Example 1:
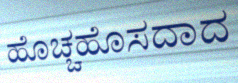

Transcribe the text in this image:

ಹೊಚ್ಚಹೊಸದಾದ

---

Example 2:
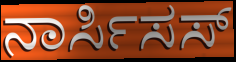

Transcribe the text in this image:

ನಾರ್ಸಿಸಸ್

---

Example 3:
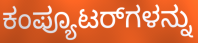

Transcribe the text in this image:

ಕಂಪ್ಯೂಟರ್‌ಗಳನ್ನು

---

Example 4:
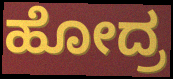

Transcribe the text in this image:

ಹೋದ್ರ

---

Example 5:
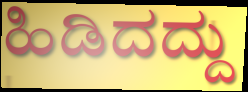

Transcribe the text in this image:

ಹಿಡಿದದ್ದು